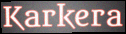
Karkera